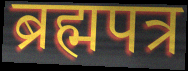
ब्रह्मपत्र